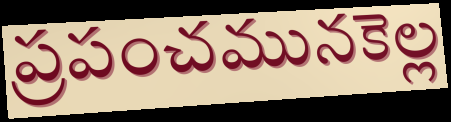
ప్రపంచమునకెల్ల